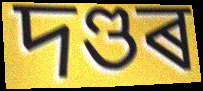
দণ্ডৰ